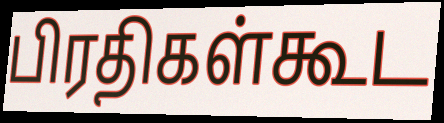
பிரதிகள்கூட